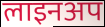
लाइनअप